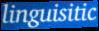
linguisitic